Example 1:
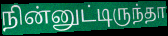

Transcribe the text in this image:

நின்னுட்டிருந்தா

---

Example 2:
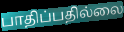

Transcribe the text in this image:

பாதிப்பதில்லை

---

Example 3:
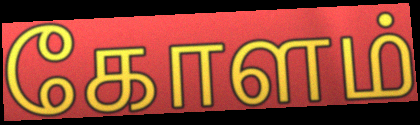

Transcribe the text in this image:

கோளம்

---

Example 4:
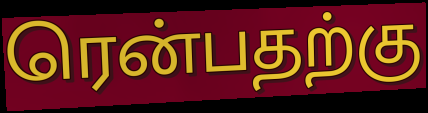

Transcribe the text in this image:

ரென்பதற்கு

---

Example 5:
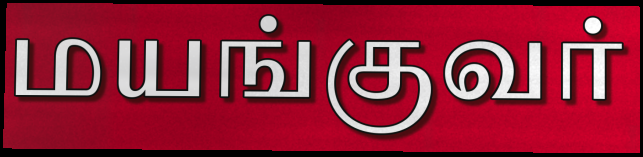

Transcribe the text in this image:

மயங்குவர்